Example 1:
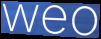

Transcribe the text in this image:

weo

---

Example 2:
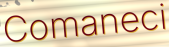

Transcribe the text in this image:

Comaneci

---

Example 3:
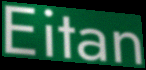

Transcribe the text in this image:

Eitan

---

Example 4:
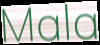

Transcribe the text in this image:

Mala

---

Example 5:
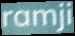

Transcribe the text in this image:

ramji